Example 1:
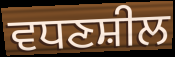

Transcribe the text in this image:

ਵਧਣਸ਼ੀਲ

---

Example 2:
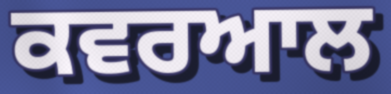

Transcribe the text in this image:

ਕਵਰਆਲ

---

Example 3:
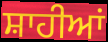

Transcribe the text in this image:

ਸ਼ਾਹੀਆਂ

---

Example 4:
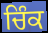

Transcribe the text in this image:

ਚਿੰਕ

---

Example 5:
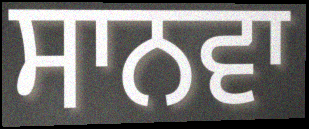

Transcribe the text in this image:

ਸਾਨਵਾ